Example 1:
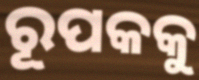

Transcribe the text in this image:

ରୂପକକୁ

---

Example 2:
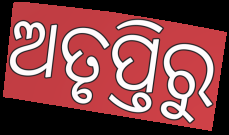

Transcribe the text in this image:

ଅତୃପ୍ତିରୁ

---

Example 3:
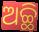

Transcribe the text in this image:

ଅଚ୍ଛି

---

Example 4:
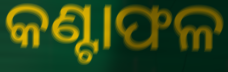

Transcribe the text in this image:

କଣ୍ଟାଫଳ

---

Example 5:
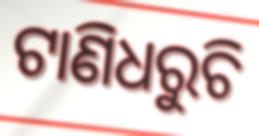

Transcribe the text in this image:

ଟାଣିଧରୁଚି